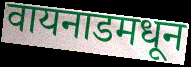
वायनाडमधून